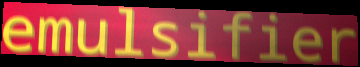
emulsifier